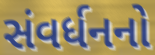
સંવર્ધનનો